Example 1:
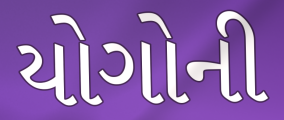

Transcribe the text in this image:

યોગોની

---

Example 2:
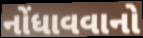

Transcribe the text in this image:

નોંધાવવાનો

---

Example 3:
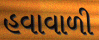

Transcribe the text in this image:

હવાવાળી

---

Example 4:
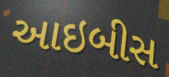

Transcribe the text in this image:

આઇબીસ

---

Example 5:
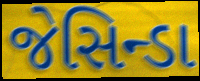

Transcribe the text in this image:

જેસિન્ડા